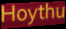
Hoythu